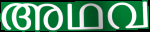
അഥവ